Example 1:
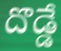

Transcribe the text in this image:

దొడ్డే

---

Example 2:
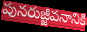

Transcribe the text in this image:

పునరుజ్జీవనానికి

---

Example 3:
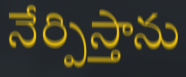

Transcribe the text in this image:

నేర్పిస్తాను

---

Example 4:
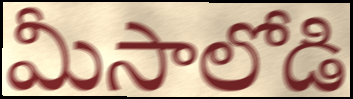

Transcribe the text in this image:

మీసాలోడి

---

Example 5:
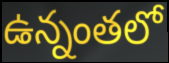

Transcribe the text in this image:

ఉన్నంతలో